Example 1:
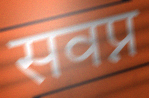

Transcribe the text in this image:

सवप्न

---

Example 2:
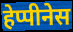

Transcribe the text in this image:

हेप्पीनेस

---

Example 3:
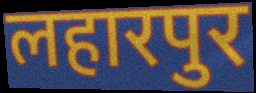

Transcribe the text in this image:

लहारपुर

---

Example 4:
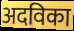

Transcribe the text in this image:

अदविका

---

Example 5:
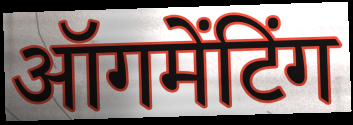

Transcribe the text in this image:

ऑगमेंटिंग